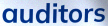
auditors